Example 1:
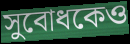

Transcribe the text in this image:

সুবোধকেও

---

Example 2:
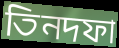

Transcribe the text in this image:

তিনদফা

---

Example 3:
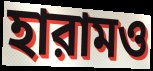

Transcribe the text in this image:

হারামও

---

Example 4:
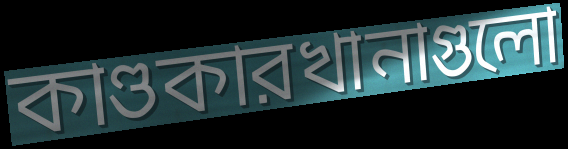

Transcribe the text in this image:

কাণ্ডকারখানাগুলো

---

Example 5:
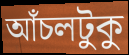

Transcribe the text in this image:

আঁচলটুকু